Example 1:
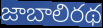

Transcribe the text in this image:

జాబాలిరథ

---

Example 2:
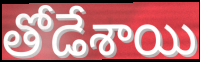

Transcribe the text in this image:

తోడేశాయి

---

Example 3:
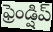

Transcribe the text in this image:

ఫ్రెండ్షిప్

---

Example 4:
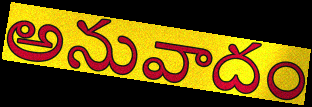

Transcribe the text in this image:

అనువాదం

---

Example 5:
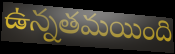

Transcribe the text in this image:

ఉన్నతమయింది